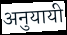
अनुयायी